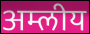
अम्‍लीय